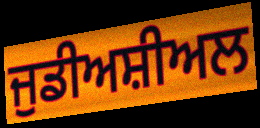
ਜੁਡੀਅਸ਼ੀਅਲ